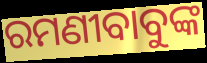
ରମଣୀବାବୁଙ୍କ